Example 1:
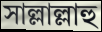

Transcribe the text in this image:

সাল্লাল্লাহু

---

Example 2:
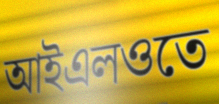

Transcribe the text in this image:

আইএলওতে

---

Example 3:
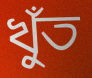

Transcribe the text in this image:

খুঁত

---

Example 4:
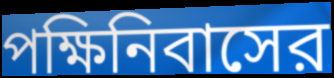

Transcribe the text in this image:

পক্ষিনিবাসের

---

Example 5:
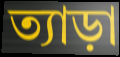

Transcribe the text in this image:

ত্যাড়া